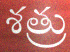
శత్రు